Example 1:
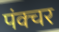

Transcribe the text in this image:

पंक्‍चर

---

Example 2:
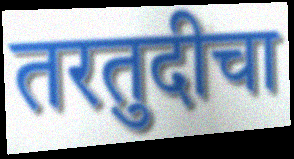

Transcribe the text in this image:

तरतुदीचा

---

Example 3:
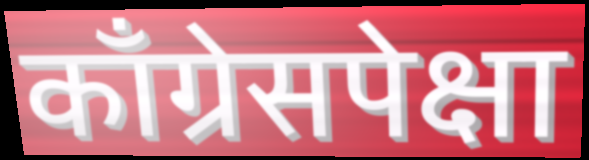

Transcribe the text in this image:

काँग्रेसपेक्षा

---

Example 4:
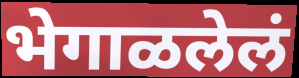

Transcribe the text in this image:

भेगाळलेलं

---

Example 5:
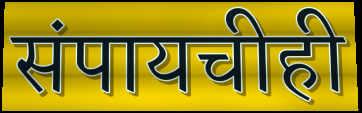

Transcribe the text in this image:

संपायचीही